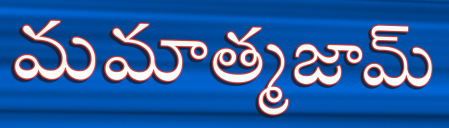
మమాత్మజామ్